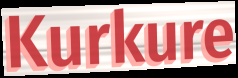
Kurkure